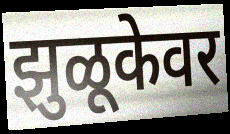
झुळूकेवर